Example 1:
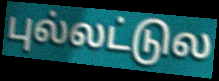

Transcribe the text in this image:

புல்லட்டுல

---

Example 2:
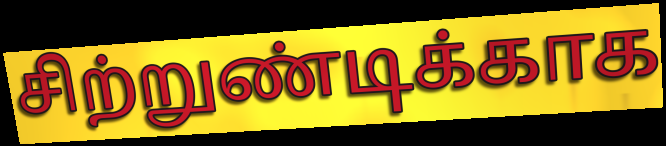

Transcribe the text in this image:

சிற்றுண்டிக்காக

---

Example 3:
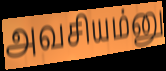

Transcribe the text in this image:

அவசியம்னு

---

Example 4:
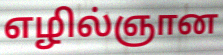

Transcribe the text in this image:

எழில்ஞான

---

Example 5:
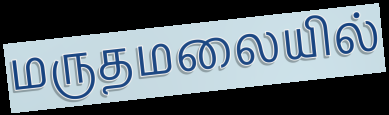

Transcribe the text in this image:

மருதமலையில்